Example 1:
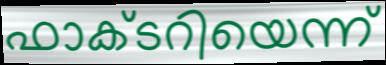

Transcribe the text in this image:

ഫാക്ടറിയെന്ന്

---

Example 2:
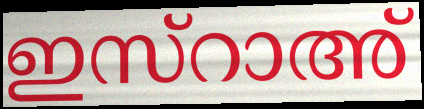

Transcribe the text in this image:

ഇസ്റാഅ്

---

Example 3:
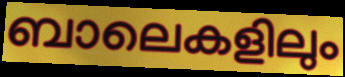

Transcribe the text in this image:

ബാലെകളിലും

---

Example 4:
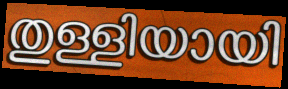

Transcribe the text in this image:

തുള്ളിയായി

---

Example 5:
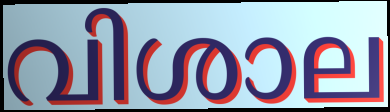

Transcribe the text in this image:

വിശാല